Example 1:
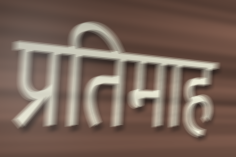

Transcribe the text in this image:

प्रतिमाह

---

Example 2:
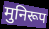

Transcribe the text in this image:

मुनिरूप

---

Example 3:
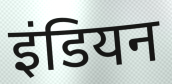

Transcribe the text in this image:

इंडियन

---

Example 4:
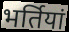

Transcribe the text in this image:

भर्तियां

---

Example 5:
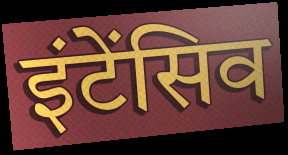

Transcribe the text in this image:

इंटेंसिव